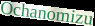
Ochanomizu